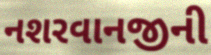
નશરવાનજીની